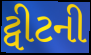
ટ્વીટની